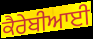
ਕੈਰੇਬੀਆਈ